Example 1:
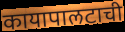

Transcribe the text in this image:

कायापालटाची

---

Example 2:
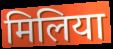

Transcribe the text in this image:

मिलिया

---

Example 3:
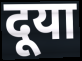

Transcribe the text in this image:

दूया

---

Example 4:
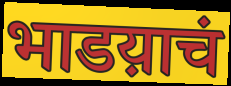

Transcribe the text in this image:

भाडय़ाचं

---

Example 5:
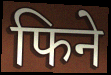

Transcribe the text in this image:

फिने